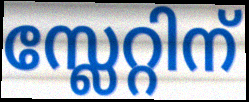
സ്ലേറ്റിന്